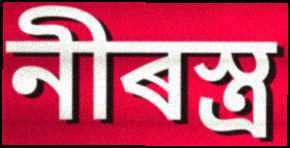
নীৰস্ত্ৰ